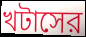
খটাসের